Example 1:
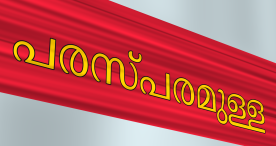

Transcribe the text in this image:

പരസ്പരമുള്ള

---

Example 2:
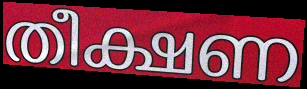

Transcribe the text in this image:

തീക്ഷണ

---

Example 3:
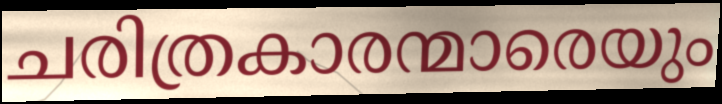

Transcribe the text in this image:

ചരിത്രകാരന്മാരെയും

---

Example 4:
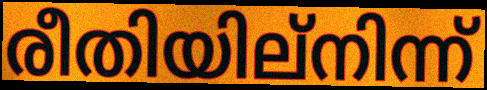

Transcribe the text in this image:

രീതിയില്നിന്ന്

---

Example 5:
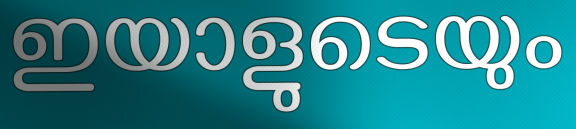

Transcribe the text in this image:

ഇയാളുടെയും